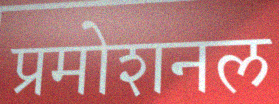
प्रमोशनल